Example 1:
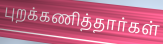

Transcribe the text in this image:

புறக்கணித்தார்கள்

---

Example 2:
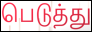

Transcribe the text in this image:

பெடுத்து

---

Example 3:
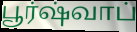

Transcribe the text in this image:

பூர்ஷ்வாப்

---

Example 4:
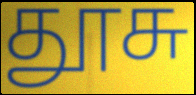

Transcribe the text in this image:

தூசு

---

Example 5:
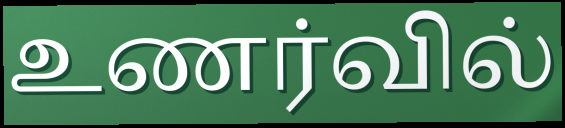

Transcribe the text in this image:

உணர்வில்